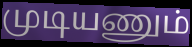
முடியணும்